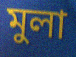
মুলা